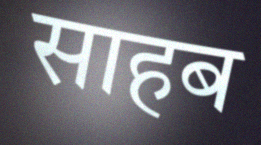
साहब